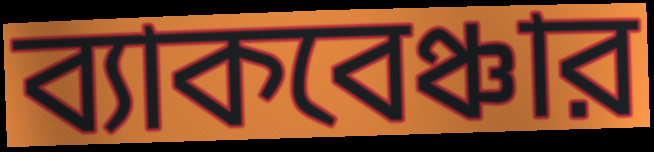
ব্যাকবেঞ্চার